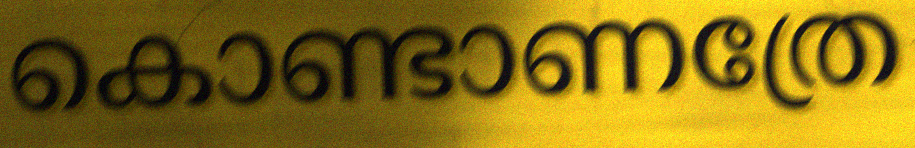
കൊണ്ടാണത്രേ